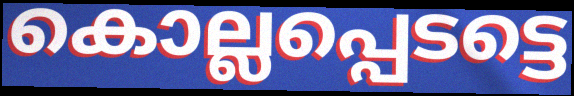
കൊല്ലപ്പെടട്ടെ